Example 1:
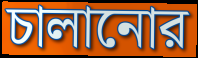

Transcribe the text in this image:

চালানোর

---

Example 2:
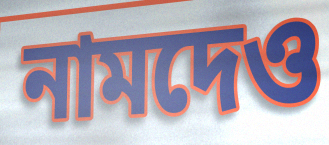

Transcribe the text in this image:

নামদেও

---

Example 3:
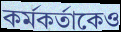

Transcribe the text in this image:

কর্মকর্তাকেও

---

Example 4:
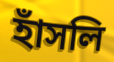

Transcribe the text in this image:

হাঁসলি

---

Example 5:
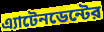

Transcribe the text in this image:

এ্যাটেনডেন্টের